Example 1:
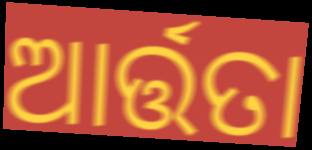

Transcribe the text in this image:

ଆର୍ତ୍ତତା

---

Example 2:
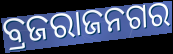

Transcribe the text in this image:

ବ୍ରଜରାଜନଗର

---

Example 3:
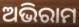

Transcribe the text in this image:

ଅଭିରାମ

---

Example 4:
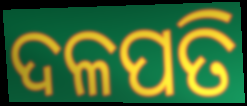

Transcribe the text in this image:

ଦଳପତି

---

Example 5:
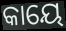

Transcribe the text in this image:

କାୟେ